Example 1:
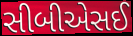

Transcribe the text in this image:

સીબીએસઈ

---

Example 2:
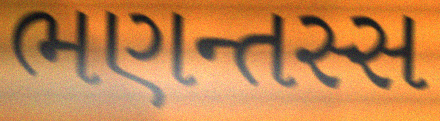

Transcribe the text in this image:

ભણન્તસ્સ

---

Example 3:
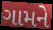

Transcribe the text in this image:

ગામને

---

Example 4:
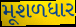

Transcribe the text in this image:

મૂશળધાર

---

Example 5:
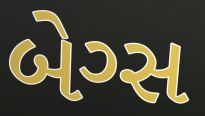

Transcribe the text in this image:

બેગ્સ